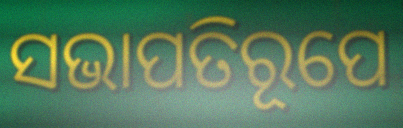
ସଭାପତିରୂପେ